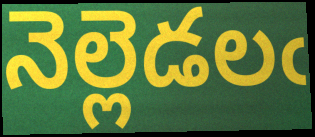
నెల్లెడలఁ